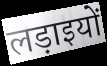
लड़ाइयों